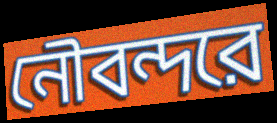
নৌবন্দরে